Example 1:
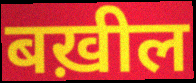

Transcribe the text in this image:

बख़ील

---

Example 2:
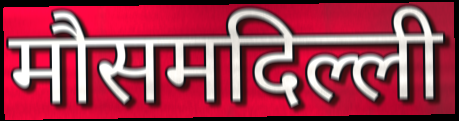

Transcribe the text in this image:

मौसमदिल्ली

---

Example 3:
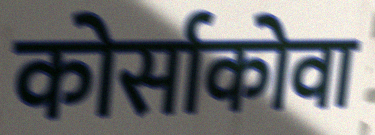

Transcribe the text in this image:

कोर्साकोवा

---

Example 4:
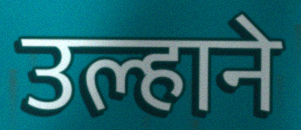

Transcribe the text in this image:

उल्हाने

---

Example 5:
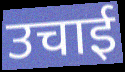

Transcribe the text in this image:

उचाई